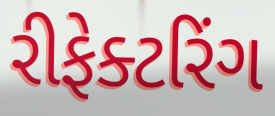
રીફેક્ટરિંગ